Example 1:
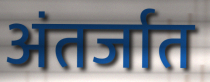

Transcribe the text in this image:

अंतर्जात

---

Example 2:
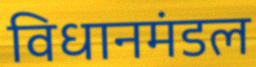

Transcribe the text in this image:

विधानमंडल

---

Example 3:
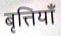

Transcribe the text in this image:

बृत्तियाँ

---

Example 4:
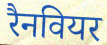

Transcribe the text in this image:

रैनवियर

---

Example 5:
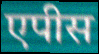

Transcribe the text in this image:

एपीस